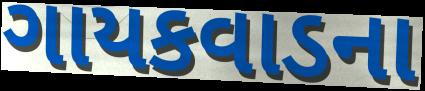
ગાયકવાડના